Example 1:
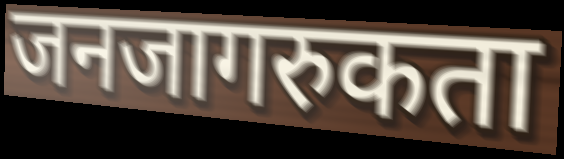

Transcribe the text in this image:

जनजागरुकता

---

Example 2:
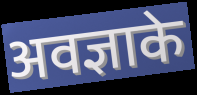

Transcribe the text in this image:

अवज्ञाके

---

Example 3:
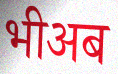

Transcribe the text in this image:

भीअब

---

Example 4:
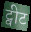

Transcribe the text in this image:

ट्वीट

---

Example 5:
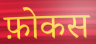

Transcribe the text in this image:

फ़ोकस